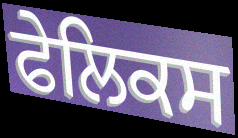
ਫੇਲਿਕਸ